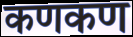
कणकण